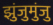
झुंजुमुंजु